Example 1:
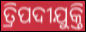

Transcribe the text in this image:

ତ୍ରିପଦୀଯୁକ୍ତି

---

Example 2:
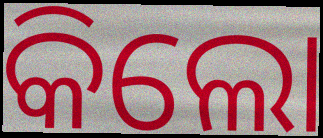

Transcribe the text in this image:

କିଲୋ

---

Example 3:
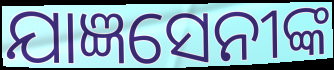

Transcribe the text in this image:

ଯାଜ୍ଞସେନୀଙ୍କ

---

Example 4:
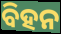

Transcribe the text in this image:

ବିହନ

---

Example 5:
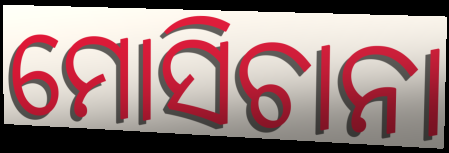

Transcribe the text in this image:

ମୋସିଚାନା